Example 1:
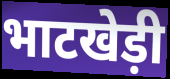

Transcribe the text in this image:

भाटखेड़ी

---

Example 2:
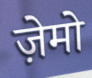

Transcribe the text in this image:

ज़ेमो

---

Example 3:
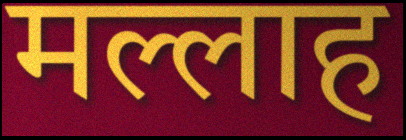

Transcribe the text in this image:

मल्लाह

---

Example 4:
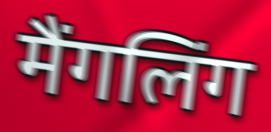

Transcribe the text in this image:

मैंगलिंग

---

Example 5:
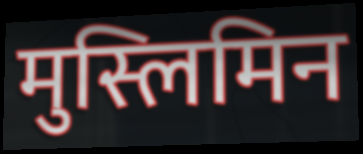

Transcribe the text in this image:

मुस्लिमिन